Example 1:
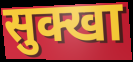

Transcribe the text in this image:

सुक्खा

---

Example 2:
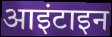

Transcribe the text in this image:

आइंटाइन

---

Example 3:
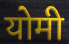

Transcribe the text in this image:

योमी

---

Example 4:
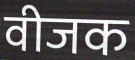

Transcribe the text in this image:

वीजक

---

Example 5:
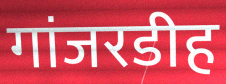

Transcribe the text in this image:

गांजरडीह